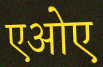
एओए